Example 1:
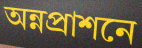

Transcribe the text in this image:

অন্নপ্রাশনে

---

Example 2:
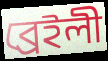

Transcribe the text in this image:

ব্রেইলী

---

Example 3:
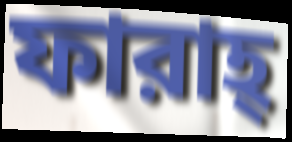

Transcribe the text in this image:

ফারাহ্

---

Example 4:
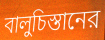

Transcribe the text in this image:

বালুচিস্তানের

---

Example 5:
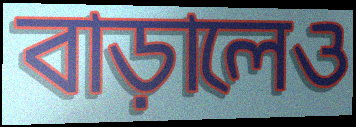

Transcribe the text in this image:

বাড়ালেও